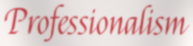
Professionalism